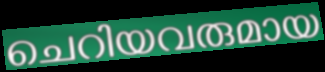
ചെറിയവരുമായ